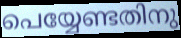
പെയ്യേണ്ടതിനു